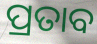
ପ୍ରତାବ